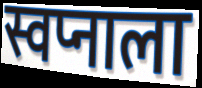
स्वप्नाला